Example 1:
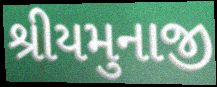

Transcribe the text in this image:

શ્રીયમુનાજી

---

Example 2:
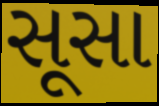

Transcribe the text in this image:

સૂસા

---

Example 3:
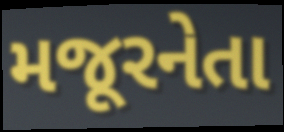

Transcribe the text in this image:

મજૂરનેતા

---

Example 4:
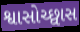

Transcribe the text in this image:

શ્વાસોચ્છ્વાસ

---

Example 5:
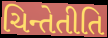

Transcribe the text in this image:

ચિન્તેતીતિ